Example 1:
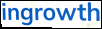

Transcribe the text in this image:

ingrowth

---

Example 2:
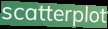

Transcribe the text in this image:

scatterplot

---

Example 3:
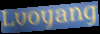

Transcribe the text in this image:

Luoyang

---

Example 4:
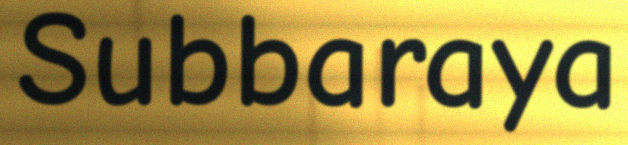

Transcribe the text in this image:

Subbaraya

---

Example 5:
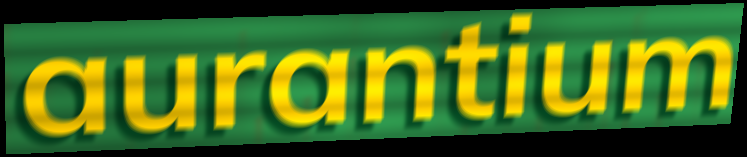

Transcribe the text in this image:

aurantium